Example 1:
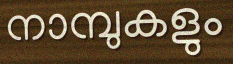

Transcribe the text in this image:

നാമ്പുകളും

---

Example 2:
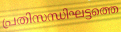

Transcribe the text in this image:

പ്രതിസന്ധിഘട്ടത്തെ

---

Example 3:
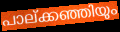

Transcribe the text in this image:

പാല്ക്കഞ്ഞിയും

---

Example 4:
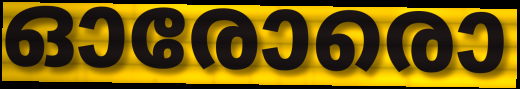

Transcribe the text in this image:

ഓരോരൊ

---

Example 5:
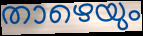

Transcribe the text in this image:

താഴെയും